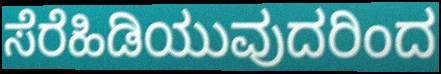
ಸೆರೆಹಿಡಿಯುವುದರಿಂದ